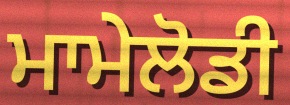
ਮਾਮੇਲੋਡੀ